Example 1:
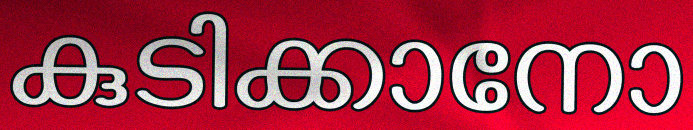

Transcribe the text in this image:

കുടിക്കാനോ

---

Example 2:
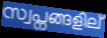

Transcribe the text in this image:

സ്വപ്നങ്ങളില്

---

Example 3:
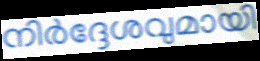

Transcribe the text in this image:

നിർദ്ദേശവുമായി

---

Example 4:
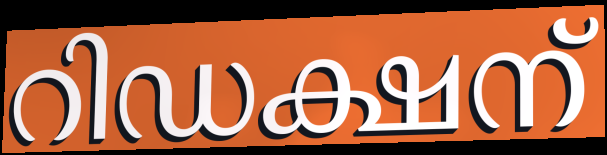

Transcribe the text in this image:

റിഡക്ഷന്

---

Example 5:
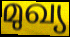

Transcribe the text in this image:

മുഖ്യ